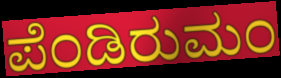
ಪೆಂಡಿರುಮಂ